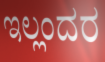
ಇಲ್ಲಂದರ